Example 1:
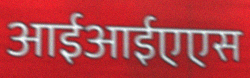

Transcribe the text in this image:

आईआईएएस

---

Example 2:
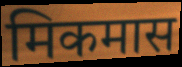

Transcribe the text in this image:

मिकमास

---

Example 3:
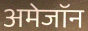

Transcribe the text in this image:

अमेजॉन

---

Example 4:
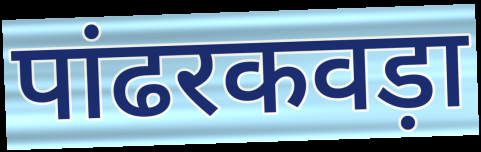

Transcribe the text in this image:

पांढरकवड़ा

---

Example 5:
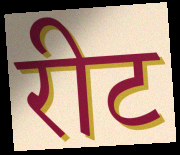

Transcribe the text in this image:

रीट